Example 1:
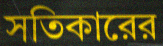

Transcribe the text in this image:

সতিকারের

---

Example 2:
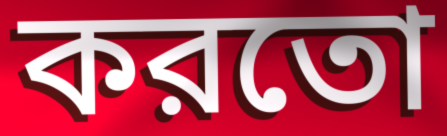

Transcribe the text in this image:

করতো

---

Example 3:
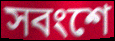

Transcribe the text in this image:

সবংশে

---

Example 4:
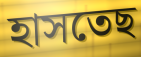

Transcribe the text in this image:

হাসতেছ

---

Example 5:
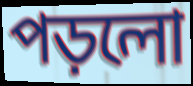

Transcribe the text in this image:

পড়লো